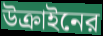
উক্রাইনের